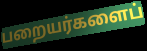
பறையர்களைப்